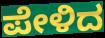
ಪೇಳಿದ